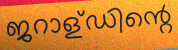
ജറാള്ഡിന്റെ